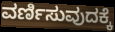
ವರ್ಣಿಸುವುದಕ್ಕೆ